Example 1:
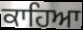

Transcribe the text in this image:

ਕਾਹਿਆ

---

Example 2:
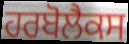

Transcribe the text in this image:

ਹਰਬੋਲੈਕਸ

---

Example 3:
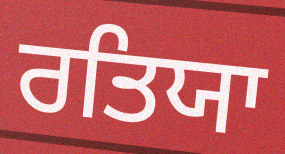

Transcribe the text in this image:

ਰਤਿਯਾ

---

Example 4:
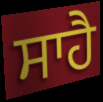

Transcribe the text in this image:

ਸਾਹੈ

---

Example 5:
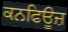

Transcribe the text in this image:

ਕਨਫਿਊਜ਼